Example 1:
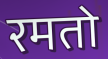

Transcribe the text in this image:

रमतो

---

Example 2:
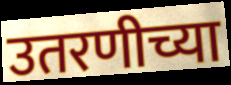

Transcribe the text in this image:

उतरणीच्या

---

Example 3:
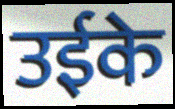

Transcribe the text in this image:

उईके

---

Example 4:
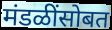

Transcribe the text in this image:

मंडळींसोबत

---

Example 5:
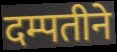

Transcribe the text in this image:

दम्पतीने